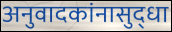
अनुवादकांनासुद्धा